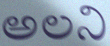
అలని